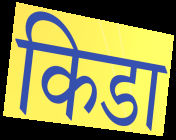
किडा